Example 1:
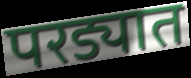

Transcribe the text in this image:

परड्यात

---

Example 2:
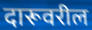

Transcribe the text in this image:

दारूवरील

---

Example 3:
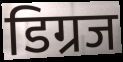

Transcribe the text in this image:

डिग्रज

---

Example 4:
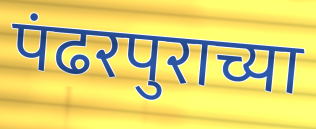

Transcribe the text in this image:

पंढरपुराच्या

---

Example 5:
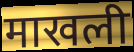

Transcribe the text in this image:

माखली